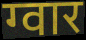
ग्वार